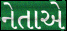
નેતાએ